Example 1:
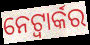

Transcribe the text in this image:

ନେଟ୍ୱାର୍କର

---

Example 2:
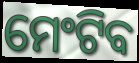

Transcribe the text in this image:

ମେଂଟିବ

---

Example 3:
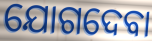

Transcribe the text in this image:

ଯୋଗଦେବା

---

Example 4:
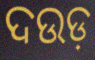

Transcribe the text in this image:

ଦଉଡ଼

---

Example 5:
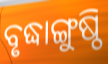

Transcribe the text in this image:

ବୃଦ୍ଧାଙ୍ଗୁଷ୍ଠି